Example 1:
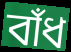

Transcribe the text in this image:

বাঁধ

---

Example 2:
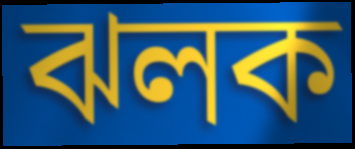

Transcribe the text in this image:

ঝলক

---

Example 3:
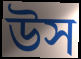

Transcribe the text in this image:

উস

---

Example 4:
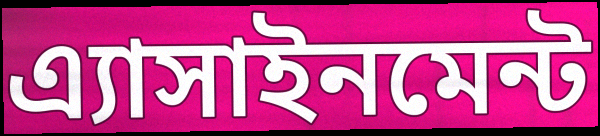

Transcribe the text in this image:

এ্যাসাইনমেন্ট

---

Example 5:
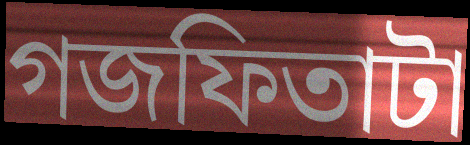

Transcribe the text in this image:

গজফিতাটা